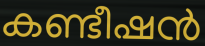
കണ്ടീഷൻ